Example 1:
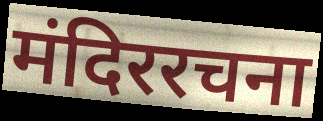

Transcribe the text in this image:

मंदिररचना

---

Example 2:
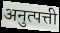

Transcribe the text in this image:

अनुत्पत्ती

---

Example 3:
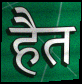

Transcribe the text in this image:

हैत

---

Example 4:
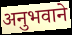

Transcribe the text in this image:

अनुभवाने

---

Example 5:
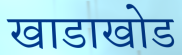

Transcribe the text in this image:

खाडाखोड